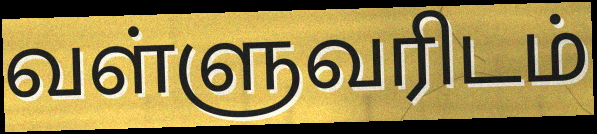
வள்ளுவரிடம்